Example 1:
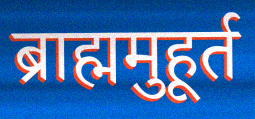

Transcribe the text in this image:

ब्राह्ममुहूर्त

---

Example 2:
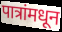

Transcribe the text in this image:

पात्रांमधून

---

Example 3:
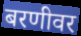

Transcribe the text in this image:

बरणीवर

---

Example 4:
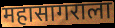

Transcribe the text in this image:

महासागराला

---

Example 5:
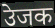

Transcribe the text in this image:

उेजक